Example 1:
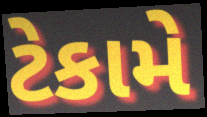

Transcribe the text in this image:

ટેકામે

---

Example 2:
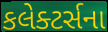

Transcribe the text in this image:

કલેક્ટર્સના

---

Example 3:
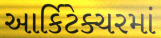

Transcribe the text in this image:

આર્કિટેક્ચરમાં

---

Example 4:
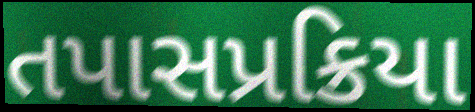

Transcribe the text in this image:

તપાસપ્રક્રિયા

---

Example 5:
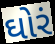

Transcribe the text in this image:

ઘોરં